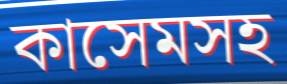
কাসেমসহ